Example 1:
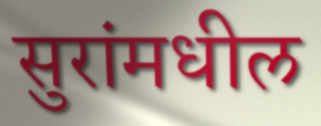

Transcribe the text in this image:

सुरांमधील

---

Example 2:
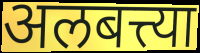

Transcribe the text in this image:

अलबत्त्या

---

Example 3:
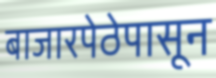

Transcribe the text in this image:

बाजारपेठेपासून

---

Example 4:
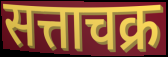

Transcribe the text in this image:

सत्ताचक्र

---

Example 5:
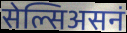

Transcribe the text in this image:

सेल्सिअसनं